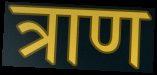
त्राण